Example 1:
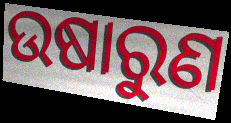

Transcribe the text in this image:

ଉଷାରୁଣ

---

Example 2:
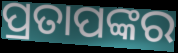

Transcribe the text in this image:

ପ୍ରତାପଙ୍କର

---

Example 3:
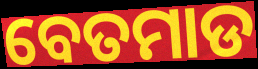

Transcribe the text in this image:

ବେତମାଡ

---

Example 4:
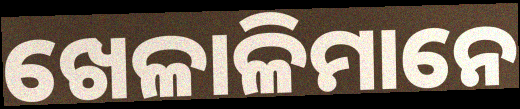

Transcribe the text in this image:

ଖେଳାଳିମାନେ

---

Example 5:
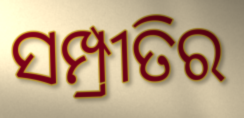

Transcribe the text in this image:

ସମ୍ପ୍ରୀତିର